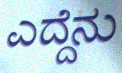
ಎದ್ದೆನು